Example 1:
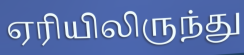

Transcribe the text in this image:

ஏரியிலிருந்து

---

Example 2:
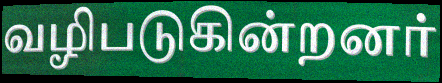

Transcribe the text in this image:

வழிபடுகின்றனர்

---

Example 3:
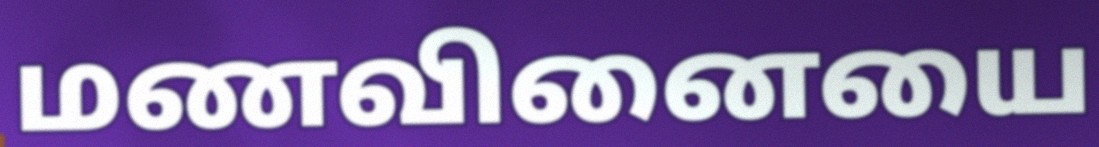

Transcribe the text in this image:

மணவினையை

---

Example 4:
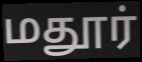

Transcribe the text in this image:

மதூர்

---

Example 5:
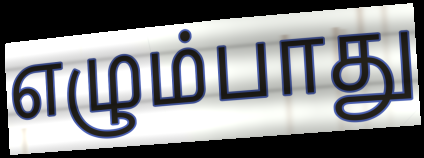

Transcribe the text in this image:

எழும்பாது